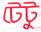
টেটু